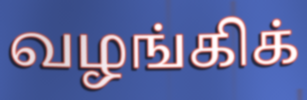
வழங்கிக்